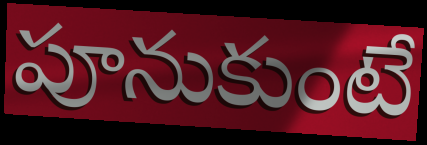
పూనుకుంటే